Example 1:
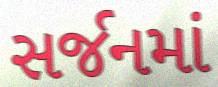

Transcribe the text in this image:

સર્જનમાં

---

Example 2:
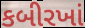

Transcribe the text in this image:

કબીરખાં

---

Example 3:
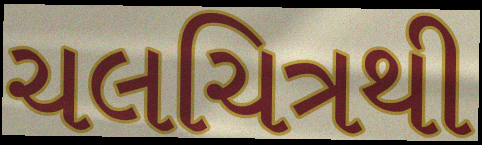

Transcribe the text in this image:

ચલચિત્રથી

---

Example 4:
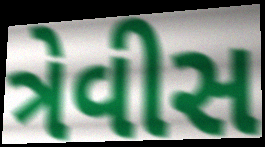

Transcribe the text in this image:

ત્રેવીસ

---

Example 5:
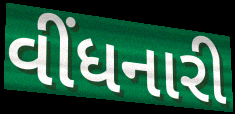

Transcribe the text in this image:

વીંધનારી